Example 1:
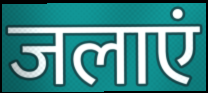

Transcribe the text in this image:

जलाएं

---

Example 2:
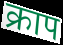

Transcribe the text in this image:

क्राप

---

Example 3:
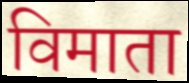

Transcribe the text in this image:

विमाता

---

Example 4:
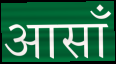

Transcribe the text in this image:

आसाँ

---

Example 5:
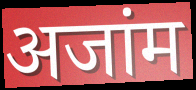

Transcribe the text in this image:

अजांम